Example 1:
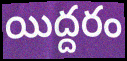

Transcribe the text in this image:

యిద్దరం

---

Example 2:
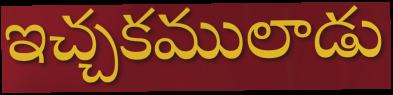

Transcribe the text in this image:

ఇచ్చకములాడు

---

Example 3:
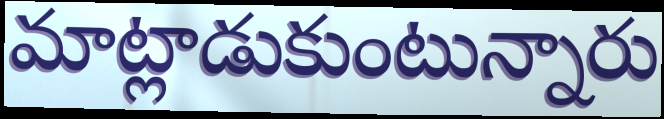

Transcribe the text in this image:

మాట్లాడుకుంటున్నారు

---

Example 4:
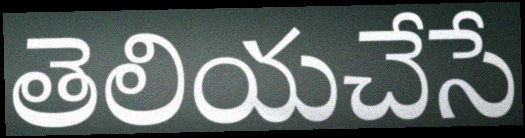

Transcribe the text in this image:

తెలియచేసే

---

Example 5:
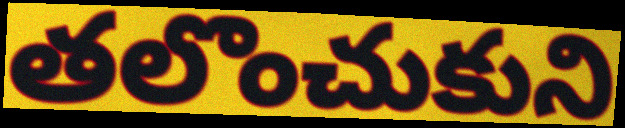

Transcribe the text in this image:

తలొంచుకుని